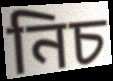
নিচ